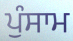
ਪੁੰਸਾਮ